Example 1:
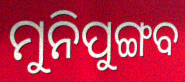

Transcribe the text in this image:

ମୁନିପୁଙ୍ଗବ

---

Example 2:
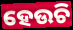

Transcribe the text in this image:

ହେଉଚି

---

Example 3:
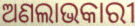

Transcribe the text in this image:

ଅଣଲାଭକାରୀ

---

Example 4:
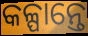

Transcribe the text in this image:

କଳ୍ପାନ୍ତେ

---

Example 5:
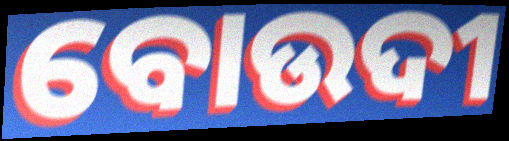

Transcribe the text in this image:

ବୋଉଦୀ